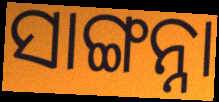
ସାଙ୍ଗନ୍ନା